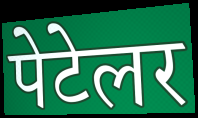
पेटेलर